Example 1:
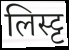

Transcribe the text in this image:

लिस्ट्ट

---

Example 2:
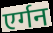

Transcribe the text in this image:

एर्गन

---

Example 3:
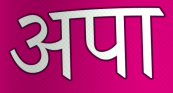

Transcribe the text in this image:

अपा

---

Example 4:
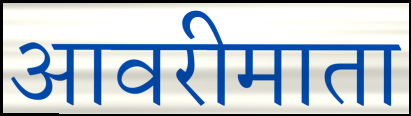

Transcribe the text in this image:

आवरीमाता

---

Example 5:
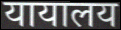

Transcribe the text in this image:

यायालय